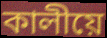
কালীয়ে